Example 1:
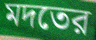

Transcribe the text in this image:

মদতের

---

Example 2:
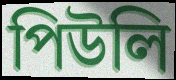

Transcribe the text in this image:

পিউলি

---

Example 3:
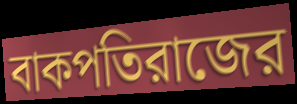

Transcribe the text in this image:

বাকপতিরাজের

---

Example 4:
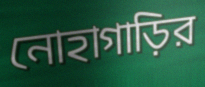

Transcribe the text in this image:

নোহাগাড়ির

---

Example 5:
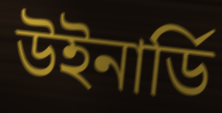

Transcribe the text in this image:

উইনার্ডি